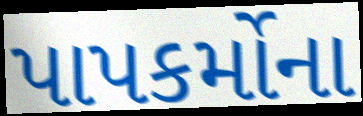
પાપકર્મોના